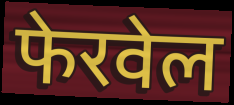
फेरवेल